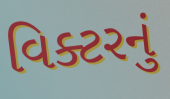
વિક્ટરનું